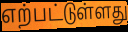
எற்பட்டுள்ளது